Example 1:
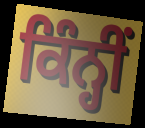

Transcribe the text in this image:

ਕਿੰਨ੍ਹੀਂ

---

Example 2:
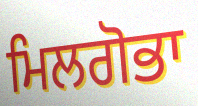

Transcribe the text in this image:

ਮਿਲਗੋਭਾ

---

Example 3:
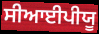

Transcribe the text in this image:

ਸੀਆਈਪੀਯੂ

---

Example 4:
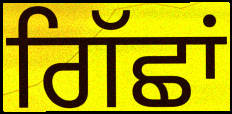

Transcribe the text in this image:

ਗਿੱਛਾਂ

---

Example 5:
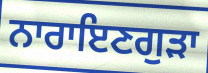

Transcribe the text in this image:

ਨਾਰਾਇਣਗੁੜਾ